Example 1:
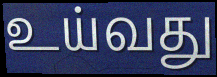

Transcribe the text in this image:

உய்வது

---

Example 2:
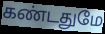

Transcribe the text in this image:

கண்டதுமே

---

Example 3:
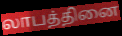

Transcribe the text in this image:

லாபத்தினை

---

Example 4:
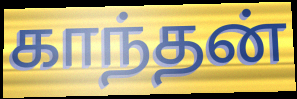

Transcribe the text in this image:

காந்தன்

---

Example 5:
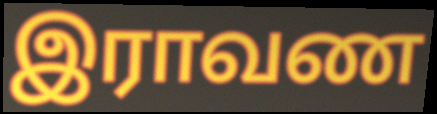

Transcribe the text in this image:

இராவண